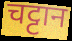
चट्टान